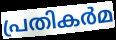
പ്രതികർമ